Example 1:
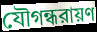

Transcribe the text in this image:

যৌগন্ধরায়ণ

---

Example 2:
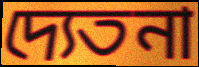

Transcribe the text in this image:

দ্যেতনা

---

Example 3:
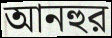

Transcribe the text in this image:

আনহুর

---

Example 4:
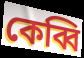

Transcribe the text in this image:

কেব্বি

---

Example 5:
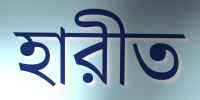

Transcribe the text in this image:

হারীত